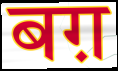
बग़